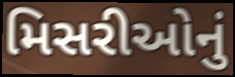
મિસરીઓનું